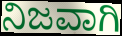
ನಿಜವಾಗಿ